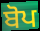
ਬੋਪ